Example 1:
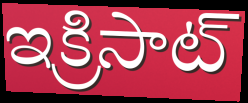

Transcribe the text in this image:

ఇక్రిసాట్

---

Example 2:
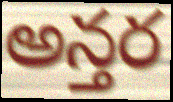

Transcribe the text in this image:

అన్తర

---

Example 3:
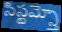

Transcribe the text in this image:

సిస్టమ్స్తో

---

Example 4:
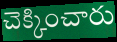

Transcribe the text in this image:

చెక్కించారు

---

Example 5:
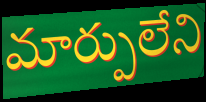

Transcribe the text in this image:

మార్పులేని